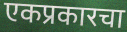
एकप्रकारचा